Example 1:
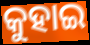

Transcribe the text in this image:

କୁହାଇ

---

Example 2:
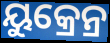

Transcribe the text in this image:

ୟୁକ୍ରେନ୍ର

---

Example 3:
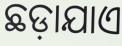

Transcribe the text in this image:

ଛଡ଼ାଯାଏ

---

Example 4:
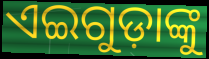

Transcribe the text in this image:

ଏଇଗୁଡ଼ାଙ୍କୁ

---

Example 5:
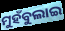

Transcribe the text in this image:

ମୁହଁବୁଲାଇ